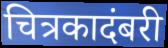
चित्रकादंबरी